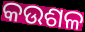
କଉଶଳ